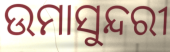
ଉମାସୁନ୍ଦରୀ